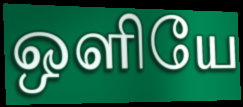
ஒளியே